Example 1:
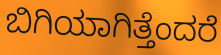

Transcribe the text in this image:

ಬಿಗಿಯಾಗಿತ್ತೆಂದರೆ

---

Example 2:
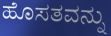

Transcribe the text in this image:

ಹೊಸತವನ್ನು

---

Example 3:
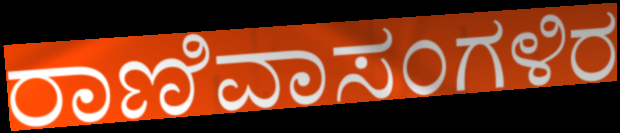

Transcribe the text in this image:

ರಾಣಿವಾಸಂಗಳಿರ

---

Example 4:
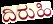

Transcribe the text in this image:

ದಿರುಹಿ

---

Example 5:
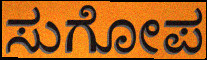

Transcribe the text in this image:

ಸುಗೋಪ